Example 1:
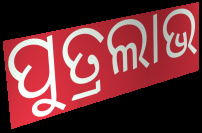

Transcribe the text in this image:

ପୁତ୍ରଲାଭ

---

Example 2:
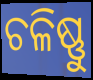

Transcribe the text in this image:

ଚଳିଷ୍ଣୁ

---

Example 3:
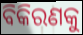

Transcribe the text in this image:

ବିକିରଣକୁ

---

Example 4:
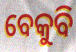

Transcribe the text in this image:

ବେକୁବି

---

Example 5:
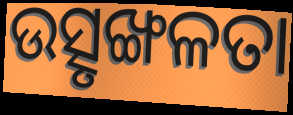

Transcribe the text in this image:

ଉତ୍ସୃଙ୍ଖଳତା